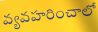
వ్యవహరించాలో